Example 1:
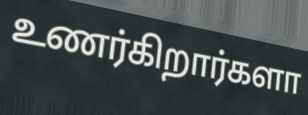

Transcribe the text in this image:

உணர்கிறார்களா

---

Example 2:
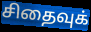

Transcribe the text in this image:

சிதைவுக்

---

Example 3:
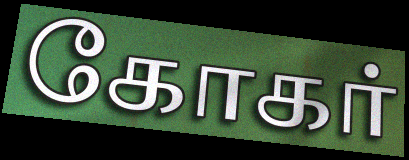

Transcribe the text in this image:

கோகர்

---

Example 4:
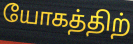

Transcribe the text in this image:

யோகத்திற்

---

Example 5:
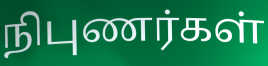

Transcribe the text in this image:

நிபுணர்கள்